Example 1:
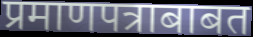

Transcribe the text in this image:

प्रमाणपत्राबाबत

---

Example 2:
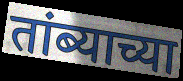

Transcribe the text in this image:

तांब्याच्या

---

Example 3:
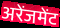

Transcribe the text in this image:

अरेंजमेंट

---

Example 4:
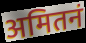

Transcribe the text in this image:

अमितनं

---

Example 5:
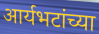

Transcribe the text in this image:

आर्यभटांच्या